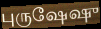
புருஷேஷு